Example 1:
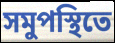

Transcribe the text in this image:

সমুপস্থিতে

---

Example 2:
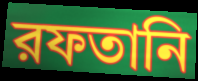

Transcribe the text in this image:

রফতানি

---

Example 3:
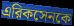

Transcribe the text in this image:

এরিকসেনকে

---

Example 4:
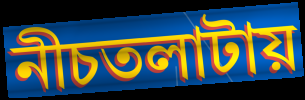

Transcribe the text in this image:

নীচতলাটায়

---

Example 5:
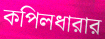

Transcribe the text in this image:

কপিলধারার